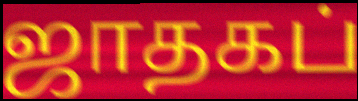
ஜாதகப்